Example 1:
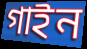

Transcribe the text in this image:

গাইন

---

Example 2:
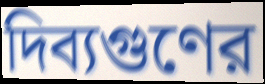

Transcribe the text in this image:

দিব্যগুণের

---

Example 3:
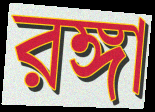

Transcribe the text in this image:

রঙ্গা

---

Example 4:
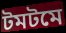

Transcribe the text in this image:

টমটমে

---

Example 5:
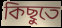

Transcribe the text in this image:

কিছুতে